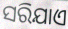
ସରିଯାଏ